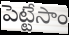
పెట్టేసాం